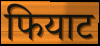
फियाट